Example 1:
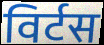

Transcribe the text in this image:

विर्टस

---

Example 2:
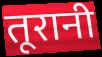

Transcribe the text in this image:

तूरानी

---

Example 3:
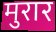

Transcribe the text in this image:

मुरार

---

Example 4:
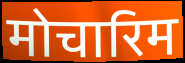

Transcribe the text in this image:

मोचारिम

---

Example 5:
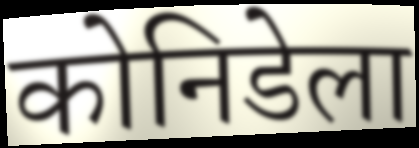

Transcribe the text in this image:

कोनिडेला